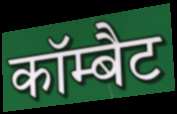
कॉम्बैट